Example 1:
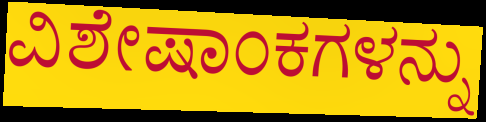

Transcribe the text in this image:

ವಿಶೇಷಾಂಕಗಳನ್ನು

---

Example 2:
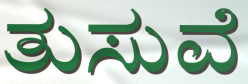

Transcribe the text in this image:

ತುಸುವೆ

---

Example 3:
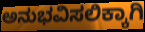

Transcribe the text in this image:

ಅನುಭವಿಸಲಿಕ್ಕಾಗಿ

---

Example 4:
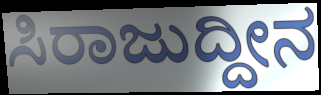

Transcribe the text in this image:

ಸಿರಾಜುದ್ದೀನ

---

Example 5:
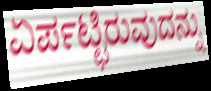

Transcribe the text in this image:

ಏರ್ಪಟ್ಟಿರುವುದನ್ನು